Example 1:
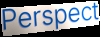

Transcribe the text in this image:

Perspect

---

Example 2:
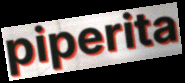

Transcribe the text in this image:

piperita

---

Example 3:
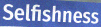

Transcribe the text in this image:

Selfishness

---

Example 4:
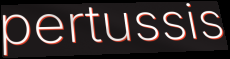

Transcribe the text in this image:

pertussis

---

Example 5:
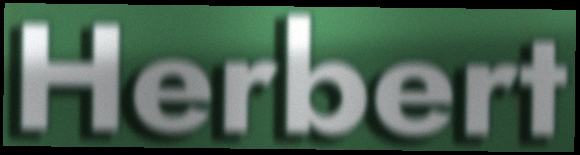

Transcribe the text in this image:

Herbert